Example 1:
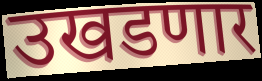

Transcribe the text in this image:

उखडणार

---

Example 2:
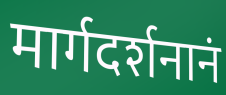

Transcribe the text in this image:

मार्गदर्शनानं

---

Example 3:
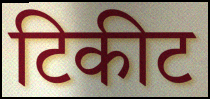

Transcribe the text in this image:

टिकीट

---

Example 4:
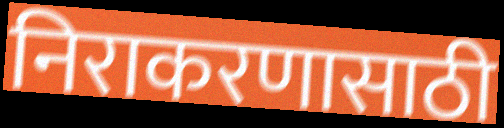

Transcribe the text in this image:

निराकरणासाठी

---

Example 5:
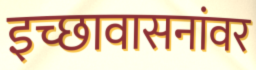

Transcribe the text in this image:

इच्छावासनांवर